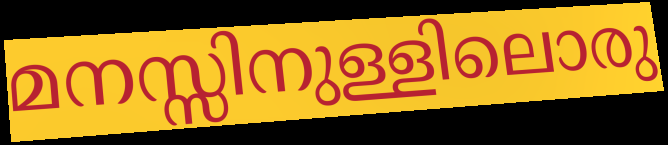
മനസ്സിനുള്ളിലൊരു